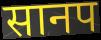
सानप